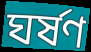
ঘৰ্ষণ